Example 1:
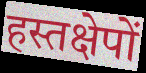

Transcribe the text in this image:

हस्तक्षेपों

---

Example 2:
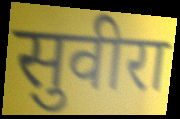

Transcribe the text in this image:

सुवीरा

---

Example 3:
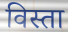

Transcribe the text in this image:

विस्ता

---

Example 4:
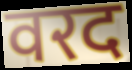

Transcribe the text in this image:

वरद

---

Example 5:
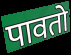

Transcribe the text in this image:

पावतो